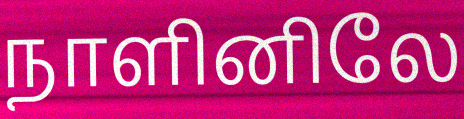
நாளினிலே